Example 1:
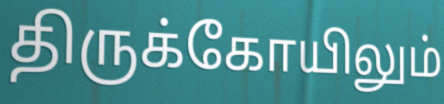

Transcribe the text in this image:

திருக்கோயிலும்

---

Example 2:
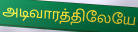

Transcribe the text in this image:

அடிவாரத்திலேயே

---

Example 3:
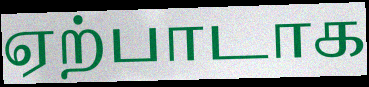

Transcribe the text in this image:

ஏற்பாடாக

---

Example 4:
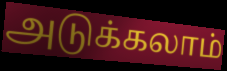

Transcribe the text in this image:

அடுக்கலாம்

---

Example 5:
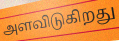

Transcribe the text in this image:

அளவிடுகிறது